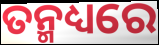
ତନ୍ମଧ୍ୟରେ